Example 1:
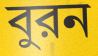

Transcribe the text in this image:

বুরন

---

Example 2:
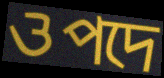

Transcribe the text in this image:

ওপদে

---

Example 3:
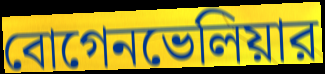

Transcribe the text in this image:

বোগেনভেলিয়ার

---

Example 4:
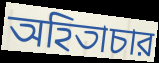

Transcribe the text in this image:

অহিতাচার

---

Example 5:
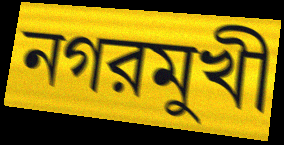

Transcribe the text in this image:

নগরমুখী